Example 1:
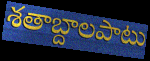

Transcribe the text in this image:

శతాబ్దాలపాటు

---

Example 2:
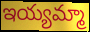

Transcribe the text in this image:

ఇయ్యమ్మా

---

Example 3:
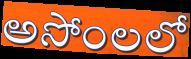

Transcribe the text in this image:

అసోంలలో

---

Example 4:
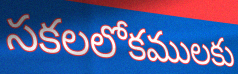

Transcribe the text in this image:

సకలలోకములకు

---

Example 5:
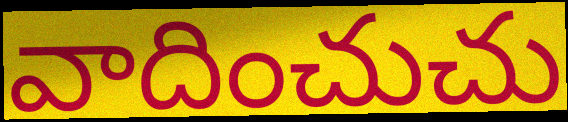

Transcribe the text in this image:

వాదించుచు